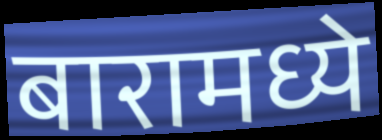
बारामध्ये